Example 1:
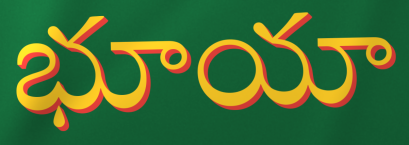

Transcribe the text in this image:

భూయా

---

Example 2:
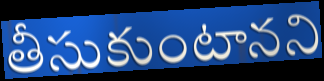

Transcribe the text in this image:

తీసుకుంటానని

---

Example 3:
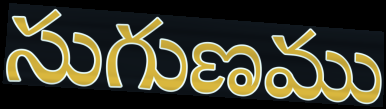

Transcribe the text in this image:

సుగుణము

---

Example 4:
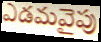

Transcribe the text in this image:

ఎడమవైపు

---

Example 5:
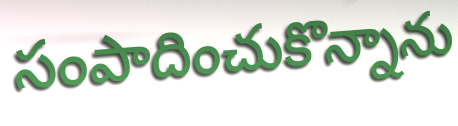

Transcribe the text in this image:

సంపాదించుకొన్నాను